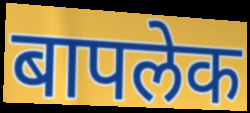
बापलेक